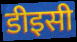
डीइसी